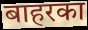
बाहरका